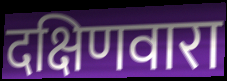
दक्षिणवारा